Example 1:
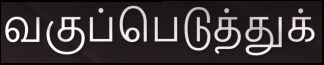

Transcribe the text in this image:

வகுப்பெடுத்துக்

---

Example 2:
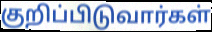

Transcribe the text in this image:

குறிப்பிடுவார்கள்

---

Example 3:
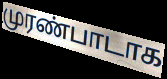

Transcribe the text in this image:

முரண்பாடாக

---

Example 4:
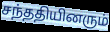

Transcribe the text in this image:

சந்ததியினரும்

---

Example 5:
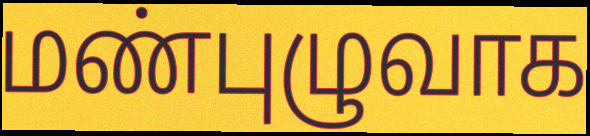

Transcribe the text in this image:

மண்புழுவாக